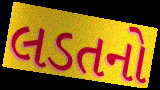
લડતનો